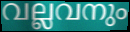
വല്ലവനും